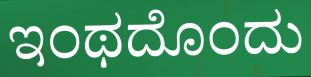
ಇಂಥದೊಂದು